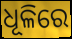
ଧୂଳିରେ